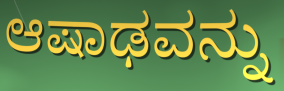
ಆಷಾಢವನ್ನು